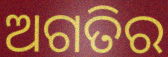
ଅଗତିର